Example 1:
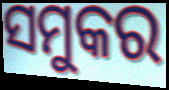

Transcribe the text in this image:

ସମୁକର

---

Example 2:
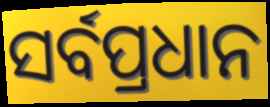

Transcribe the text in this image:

ସର୍ବପ୍ରଧାନ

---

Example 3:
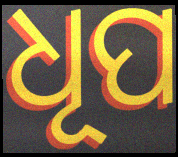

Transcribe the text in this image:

ଧୂପ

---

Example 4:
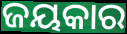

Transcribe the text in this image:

ଜୟକାର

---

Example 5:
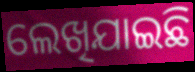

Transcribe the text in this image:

ଲେଖିଯାଇଛି